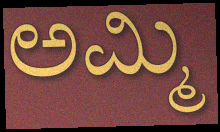
ಅಮ್ಮಿ